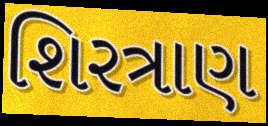
શિરત્રાણ